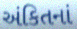
અંકિતનાં